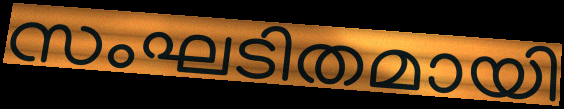
സംഘടിതമായി